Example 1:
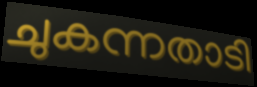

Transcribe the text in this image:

ചുകന്നതാടി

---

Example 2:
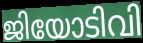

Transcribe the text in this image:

ജിയോടിവി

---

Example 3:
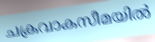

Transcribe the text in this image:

ചക്രവാകസീമയിൽ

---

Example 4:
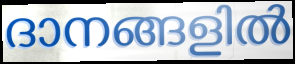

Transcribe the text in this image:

ദാനങ്ങളിൽ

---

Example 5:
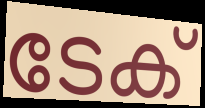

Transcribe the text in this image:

ടേക്